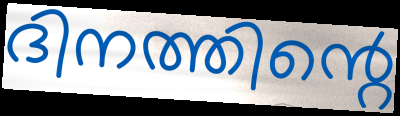
ദിനത്തിന്റെ